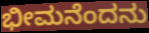
ಭೀಮನೆಂದನು